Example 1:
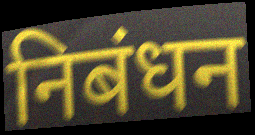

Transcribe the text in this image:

निबंधन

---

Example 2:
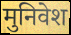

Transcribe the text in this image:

मुनिवेश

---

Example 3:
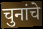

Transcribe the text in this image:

चुनांचे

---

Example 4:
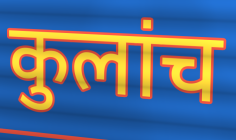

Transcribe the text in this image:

कुलांच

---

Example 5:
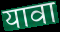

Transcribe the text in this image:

यावा